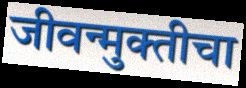
जीवन्मुक्तीचा